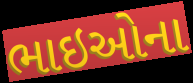
ભાઇઓના